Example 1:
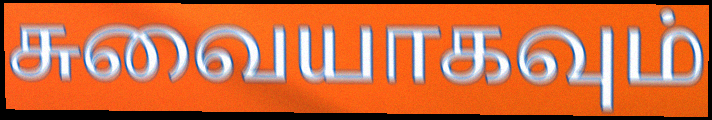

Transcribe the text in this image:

சுவையாகவும்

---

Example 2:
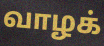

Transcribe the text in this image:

வாழக்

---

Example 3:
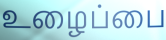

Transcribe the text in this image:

உழைப்பை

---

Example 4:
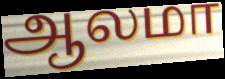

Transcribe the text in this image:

ஆலமா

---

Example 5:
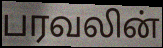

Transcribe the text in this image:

பரவலின்